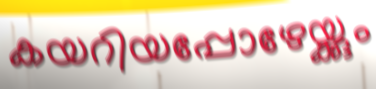
കയറിയപ്പോഴേയ്ക്കും